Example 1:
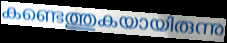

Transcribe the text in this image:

കണ്ടെത്തുകയായിരുന്നു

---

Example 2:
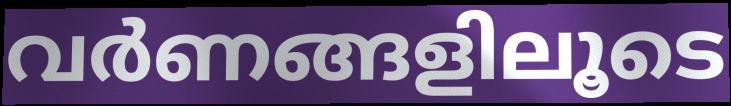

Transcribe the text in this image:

വർണങ്ങളിലൂടെ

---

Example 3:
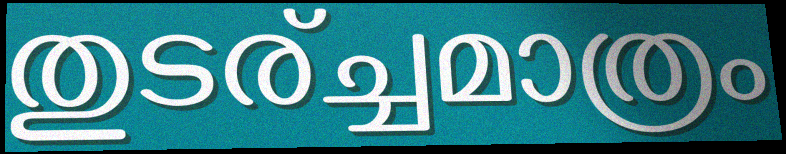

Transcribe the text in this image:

തുടര്ച്ചമാത്രം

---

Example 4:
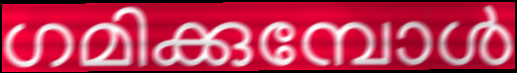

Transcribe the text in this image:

ഗമിക്കുമ്പോൾ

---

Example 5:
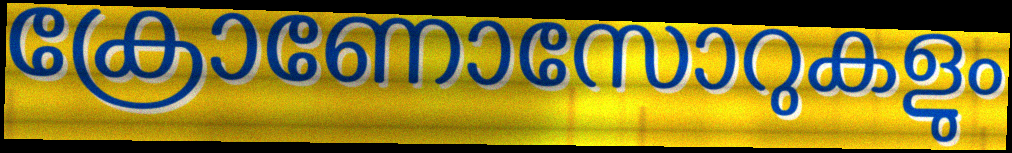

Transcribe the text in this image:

ക്രോണോസോറുകളും